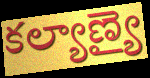
కల్యాణ్యై